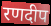
रणदीप